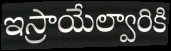
ఇస్రాయేల్వారికి